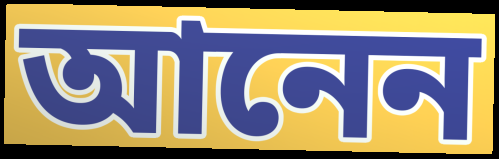
আনেন